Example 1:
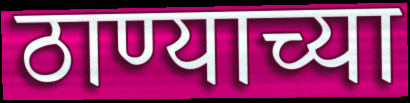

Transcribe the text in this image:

ठाण्याच्या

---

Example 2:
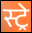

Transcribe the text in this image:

स्ट्रे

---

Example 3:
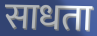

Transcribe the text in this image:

साधता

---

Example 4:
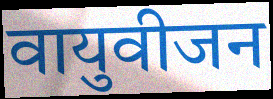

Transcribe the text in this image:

वायुवीजन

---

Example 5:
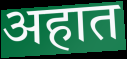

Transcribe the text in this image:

अहात